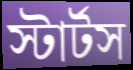
স্টার্টস